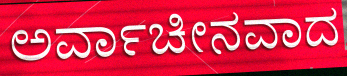
ಅರ್ವಾಚೀನವಾದ